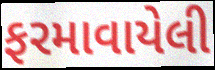
ફરમાવાયેલી